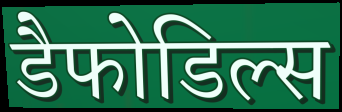
डैफोडिल्स